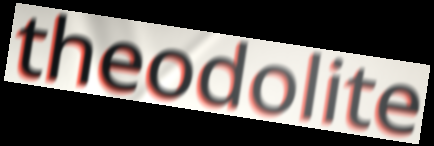
theodolite